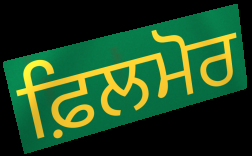
ਫ਼ਿਲਮੋਰ